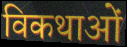
विकथाओं